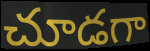
చూడగా